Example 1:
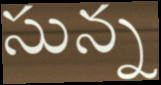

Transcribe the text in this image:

సున్న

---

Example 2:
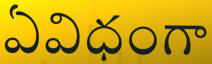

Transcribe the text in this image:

ఏవిధంగా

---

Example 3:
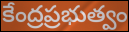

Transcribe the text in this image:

కేంద్రప్రభుత్వం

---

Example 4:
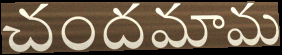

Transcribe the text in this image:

చందమామ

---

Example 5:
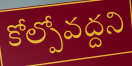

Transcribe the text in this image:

కోల్పోవద్దని